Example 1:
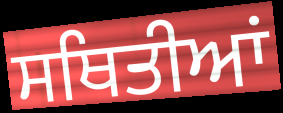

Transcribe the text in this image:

ਸਥਿਤੀਆਂ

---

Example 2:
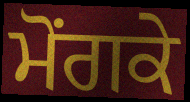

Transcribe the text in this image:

ਮੋਂਗਕੇ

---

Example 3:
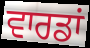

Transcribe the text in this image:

ਵਾਰਡਾਂ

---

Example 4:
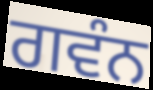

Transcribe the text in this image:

ਗਵੰਨ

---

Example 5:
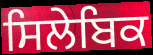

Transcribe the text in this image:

ਸਿਲੇਬਿਕ